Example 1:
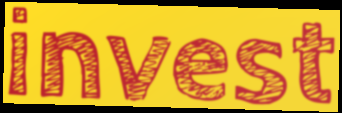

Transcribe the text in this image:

invest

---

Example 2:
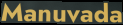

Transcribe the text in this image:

Manuvada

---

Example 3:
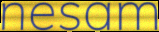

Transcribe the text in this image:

nesam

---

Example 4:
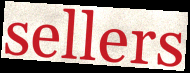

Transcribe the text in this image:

sellers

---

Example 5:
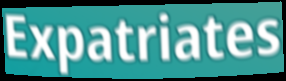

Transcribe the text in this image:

Expatriates